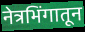
नेत्रभिंगातून